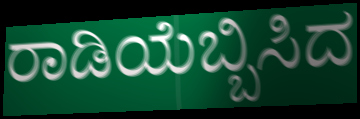
ರಾಡಿಯೆಬ್ಬಿಸಿದ